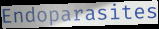
Endoparasites